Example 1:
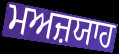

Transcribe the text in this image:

ਮਅਜ਼ਯਾਹ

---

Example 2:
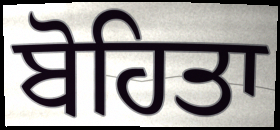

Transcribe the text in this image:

ਬੋਹਿਤਾ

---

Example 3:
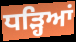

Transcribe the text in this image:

ਧੜ੍ਹਿਆਂ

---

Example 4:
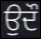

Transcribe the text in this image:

ਉਦੌ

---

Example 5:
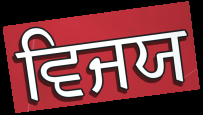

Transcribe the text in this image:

ਵਿਜਯ